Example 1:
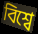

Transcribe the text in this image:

বিশ্বে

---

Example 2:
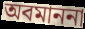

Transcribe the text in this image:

অবমাননা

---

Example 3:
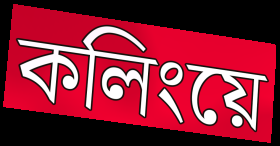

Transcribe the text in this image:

কলিংয়ে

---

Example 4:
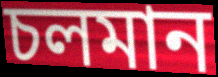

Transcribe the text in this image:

চলমান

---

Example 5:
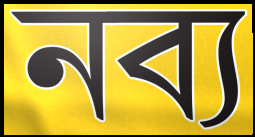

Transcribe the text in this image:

নব্য